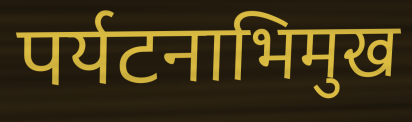
पर्यटनाभिमुख